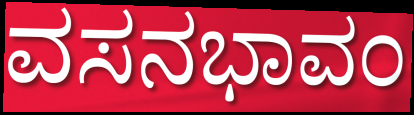
ವಸನಭಾವಂ